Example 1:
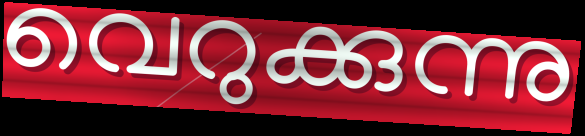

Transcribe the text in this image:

വെറുക്കുന്നു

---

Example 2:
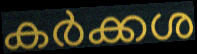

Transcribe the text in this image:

കർക്കശ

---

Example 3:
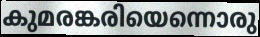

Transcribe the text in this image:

കുമരങ്കരിയെന്നൊരു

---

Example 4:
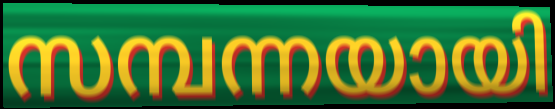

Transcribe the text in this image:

സമ്പന്നയായി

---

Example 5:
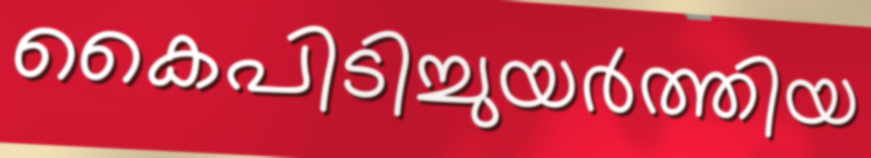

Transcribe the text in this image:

കൈപിടിച്ചുയർത്തിയ